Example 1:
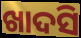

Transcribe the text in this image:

ଖାଦସି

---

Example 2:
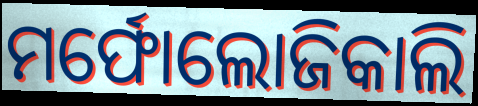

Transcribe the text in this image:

ମର୍ଫୋଲୋଜିକାଲି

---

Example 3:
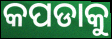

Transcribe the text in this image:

କପଡାକୁ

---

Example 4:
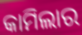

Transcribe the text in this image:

କାମିଲାର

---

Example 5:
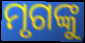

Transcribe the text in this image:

ମୃଗଙ୍କୁ